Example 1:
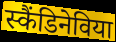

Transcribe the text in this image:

स्कैंडिनेविया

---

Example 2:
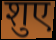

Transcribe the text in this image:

शुए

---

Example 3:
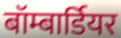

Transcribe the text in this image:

बॉम्बार्डियर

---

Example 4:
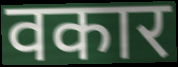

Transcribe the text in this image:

वकार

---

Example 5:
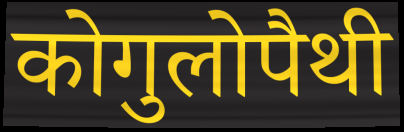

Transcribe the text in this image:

कोगुलोपैथी